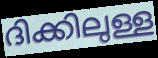
ദിക്കിലുള്ള